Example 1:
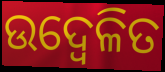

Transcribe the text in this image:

ଉଦ୍ବେଳିତ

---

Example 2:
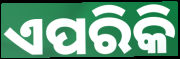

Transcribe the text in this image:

ଏପରିକି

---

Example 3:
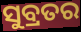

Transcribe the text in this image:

ସୁବ୍ରତର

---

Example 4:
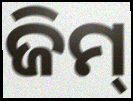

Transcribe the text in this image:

ଜିମ୍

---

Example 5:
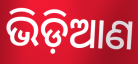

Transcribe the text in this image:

ଭିଡ଼ିଆଣ